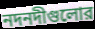
নদনদীগুলোর